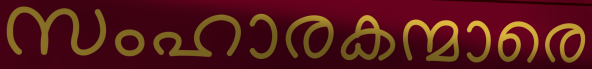
സംഹാരകന്മാരെ